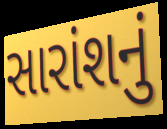
સારાંશનું